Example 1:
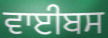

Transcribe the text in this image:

ਵਾਈਬਸ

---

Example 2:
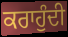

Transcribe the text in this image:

ਕਰਾਹੁੰਦੀ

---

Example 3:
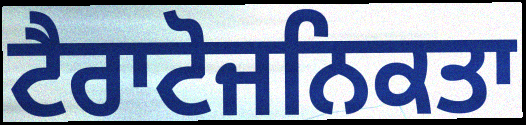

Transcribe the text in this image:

ਟੈਰਾਟੋਜਨਿਕਤਾ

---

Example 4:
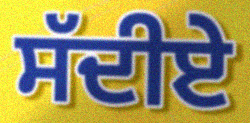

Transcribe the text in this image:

ਸੱਦੀਏ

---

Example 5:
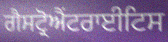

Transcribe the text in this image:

ਗੈਸਟ੍ਰੋਐਂਟਰਾਈਟਿਸ